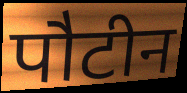
पौटीन